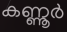
കണ്ണൂർ